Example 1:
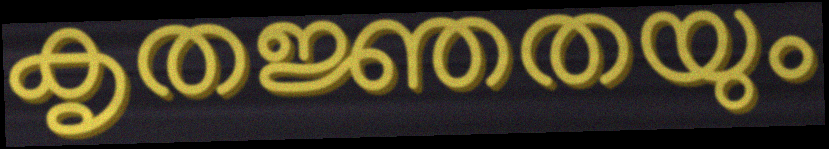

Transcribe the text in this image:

കൃതജ്ഞതയും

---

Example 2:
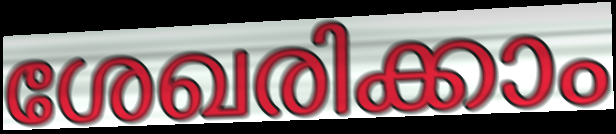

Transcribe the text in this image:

ശേഖരിക്കാം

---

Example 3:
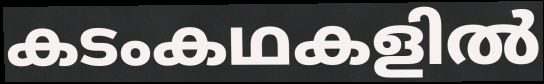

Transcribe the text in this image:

കടംകഥകളിൽ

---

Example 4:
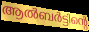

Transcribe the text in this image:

ആൽബർട്ടിന്റെ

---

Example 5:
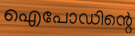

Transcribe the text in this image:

ഐപോഡിന്റെ